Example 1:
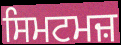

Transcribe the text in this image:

ਸਿਮਟਮਜ਼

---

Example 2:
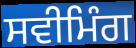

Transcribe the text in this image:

ਸਵੀਮਿੰਗ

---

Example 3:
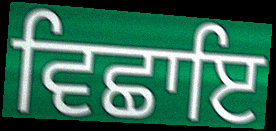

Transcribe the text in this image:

ਵਿਛਾਇ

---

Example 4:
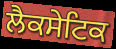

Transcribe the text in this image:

ਲੈਕਸੇਟਿਕ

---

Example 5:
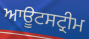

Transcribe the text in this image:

ਆਊਟਸਟ੍ਰੀਮ